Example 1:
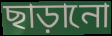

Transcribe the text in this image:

ছাড়ানো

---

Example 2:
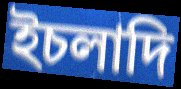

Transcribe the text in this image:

ইচলাদি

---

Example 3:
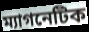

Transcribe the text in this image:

ম্যাগনেটিক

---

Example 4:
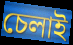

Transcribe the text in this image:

চেলাই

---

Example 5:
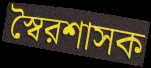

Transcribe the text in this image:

স্বৈরশাসক